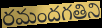
రమందగతిని